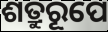
ଶତ୍ରୁରୂପେ